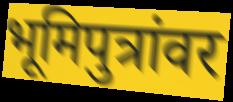
भूमिपुत्रांवर